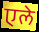
एले